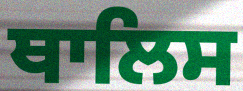
ਥਾਲਿਸ